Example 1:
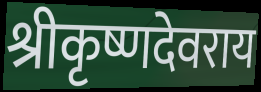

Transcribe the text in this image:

श्रीकृष्णदेवराय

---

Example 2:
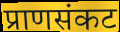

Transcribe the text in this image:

प्राणसंकट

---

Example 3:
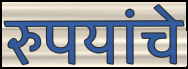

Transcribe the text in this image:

रुपयांचे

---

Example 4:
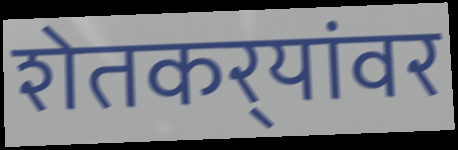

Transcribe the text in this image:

शेतकर्‍यांवर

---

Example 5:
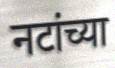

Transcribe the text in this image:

नटांच्या